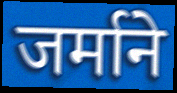
जर्माने